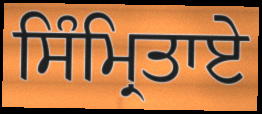
ਸਿੰਮ੍ਰਿਤਾਏ